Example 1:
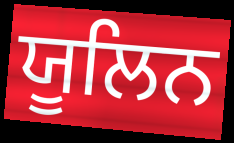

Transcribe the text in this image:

ਯੂਲਿਨ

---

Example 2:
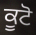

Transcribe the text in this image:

ਕੂਟੋ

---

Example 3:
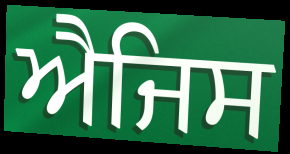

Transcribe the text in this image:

ਐਜਿਸ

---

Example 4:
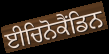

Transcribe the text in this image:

ਈਚਿਨੋਕੈਂਡਿਨ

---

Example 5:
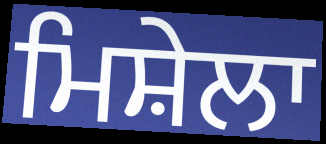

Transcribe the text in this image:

ਮਿਸ਼ੇਲਾ